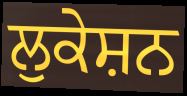
ਲੁਕੇਸ਼ਨ